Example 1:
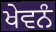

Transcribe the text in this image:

ਖੇਵਨੰ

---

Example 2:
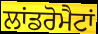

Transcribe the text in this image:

ਲਾਂਡਰੋਮੈਟਾਂ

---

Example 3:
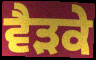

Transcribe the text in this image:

ਵੈੜਕੇ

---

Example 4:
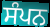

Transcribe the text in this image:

ਸੰਪਨ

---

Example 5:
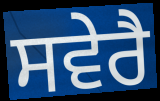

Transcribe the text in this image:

ਸਵੇਰੈ